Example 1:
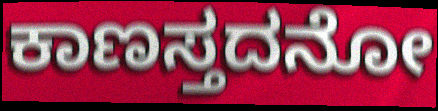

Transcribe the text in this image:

ಕಾಣಸ್ತದನೋ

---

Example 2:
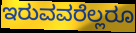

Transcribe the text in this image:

ಇರುವವರೆಲ್ಲರೂ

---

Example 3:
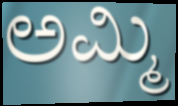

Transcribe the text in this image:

ಅಮ್ಮಿ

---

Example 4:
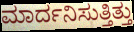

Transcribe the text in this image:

ಮಾರ್ದನಿಸುತ್ತಿತ್ತು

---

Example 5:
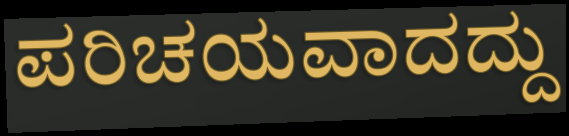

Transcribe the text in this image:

ಪರಿಚಯವಾದದ್ದು